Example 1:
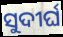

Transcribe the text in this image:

ସୁଦୀର୍ଘ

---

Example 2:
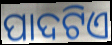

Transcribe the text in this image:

ପାଦଟିଏ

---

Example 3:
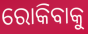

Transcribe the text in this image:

ରୋକିବାକୁ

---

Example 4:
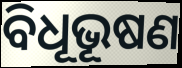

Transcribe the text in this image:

ବିଧୂଭୂଷଣ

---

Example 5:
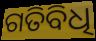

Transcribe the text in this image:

ଗତିବିଧି